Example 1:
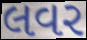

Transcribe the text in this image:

લવર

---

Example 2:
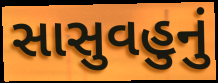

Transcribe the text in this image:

સાસુવહુનું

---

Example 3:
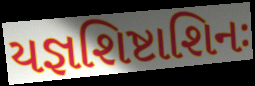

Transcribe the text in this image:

યજ્ઞશિષ્ટાશિનઃ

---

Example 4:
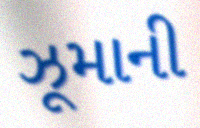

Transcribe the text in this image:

ઝૂમાની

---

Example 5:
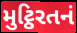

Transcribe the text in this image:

મુટ્ઠિરતનં